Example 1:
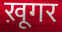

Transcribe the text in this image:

ख़ूगर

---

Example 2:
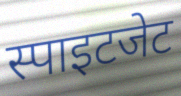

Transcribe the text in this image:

स्पाइटजेट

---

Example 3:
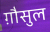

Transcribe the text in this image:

ग़ौसुल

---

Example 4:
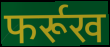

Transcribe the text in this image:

फर्रूख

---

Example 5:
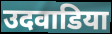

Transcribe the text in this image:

उदवाडिया